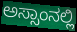
ಅಸ್ಸಾಂನಲ್ಲಿ